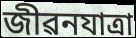
জীৱনযাত্ৰা